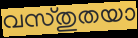
വസ്തുതയാ